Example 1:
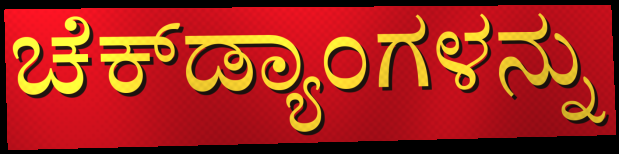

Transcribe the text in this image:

ಚೆಕ್‌ಡ್ಯಾಂಗಳನ್ನು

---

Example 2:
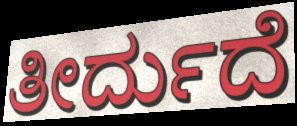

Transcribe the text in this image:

ತೀರ್ದುದೆ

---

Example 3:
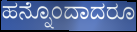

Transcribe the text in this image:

ಹನ್ನೊಂದಾದರೂ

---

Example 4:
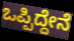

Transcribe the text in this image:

ಒಪ್ಪಿದ್ದೇನೆ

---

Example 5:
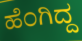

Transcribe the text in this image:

ಹೆಂಗಿದ್ದ